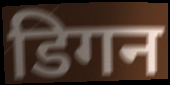
डिगन